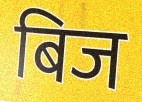
बिज